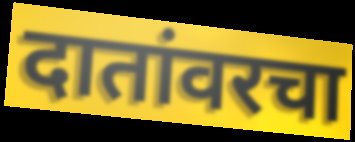
दातांवरचा